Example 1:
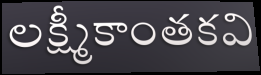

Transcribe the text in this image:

లక్ష్మీకాంతకవి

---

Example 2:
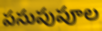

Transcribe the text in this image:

పసుపుపూల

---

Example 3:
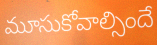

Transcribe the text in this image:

మూసుకోవాల్సిందే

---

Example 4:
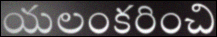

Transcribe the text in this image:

యలంకరించి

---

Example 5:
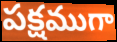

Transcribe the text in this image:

పక్షముగా